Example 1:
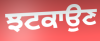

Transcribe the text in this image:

ਝਟਕਾਉਣ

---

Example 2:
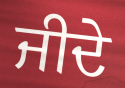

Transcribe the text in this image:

ਜੀਦੇ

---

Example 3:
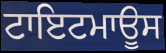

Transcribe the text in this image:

ਟਾਇਟਮਾਊਸ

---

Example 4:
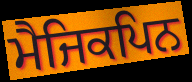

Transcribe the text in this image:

ਮੈਜਿਕਪਿਨ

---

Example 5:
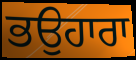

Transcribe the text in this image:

ਭਉਹਾਰਾ